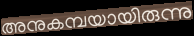
അനുകമ്പയായിരുന്നു